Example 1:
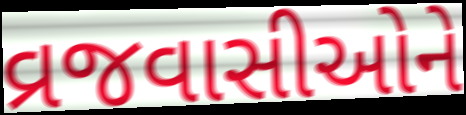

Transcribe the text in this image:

વ્રજવાસીઓને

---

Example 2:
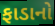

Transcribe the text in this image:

ફાડાનો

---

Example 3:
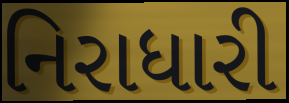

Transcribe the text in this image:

નિરાધારી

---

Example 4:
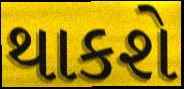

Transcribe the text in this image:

થાકશે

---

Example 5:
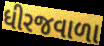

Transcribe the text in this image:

ધીરજવાળા